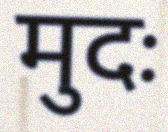
मुदः